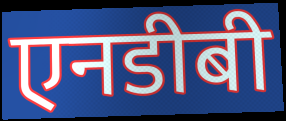
एनडीबी